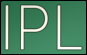
IPL